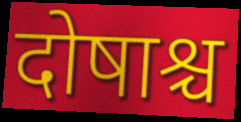
दोषाश्च